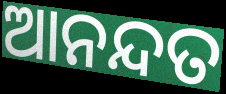
ଆନନ୍ଦତ